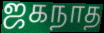
ஜகநாத